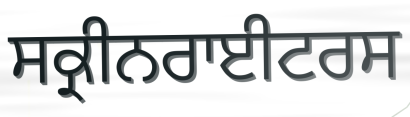
ਸਕ੍ਰੀਨਰਾਈਟਰਸ